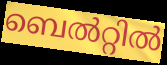
ബെൽറ്റിൽ